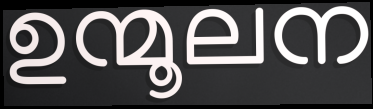
ഉന്മൂലന